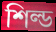
শিল্ড